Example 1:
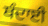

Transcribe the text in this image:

ਥੰਦਾਈ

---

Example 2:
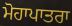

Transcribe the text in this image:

ਮੋਹਾਪਾਤਰਾ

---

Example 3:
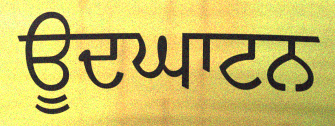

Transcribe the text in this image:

ਊਦਘਾਟਨ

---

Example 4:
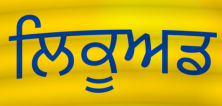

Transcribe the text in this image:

ਲਿਕੂਅਡ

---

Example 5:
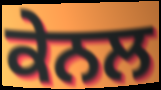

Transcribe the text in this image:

ਕੇਨਲ